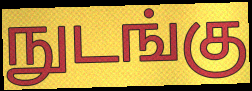
நுடங்கு